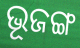
ଭୂଜଙ୍ଗ